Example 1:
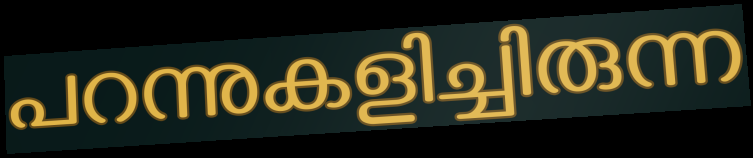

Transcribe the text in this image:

പറന്നുകളിച്ചിരുന്ന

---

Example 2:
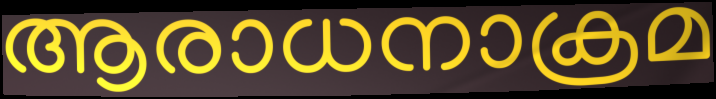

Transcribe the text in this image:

ആരാധനാക്രമ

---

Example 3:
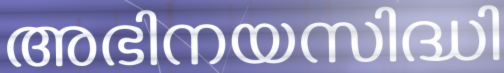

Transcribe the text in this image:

അഭിനയസിദ്ധി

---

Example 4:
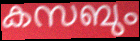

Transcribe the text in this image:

കസബും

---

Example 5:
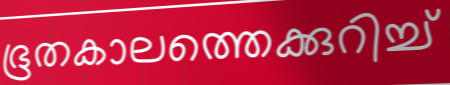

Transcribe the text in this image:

ഭൂതകാലത്തെക്കുറിച്ച്